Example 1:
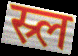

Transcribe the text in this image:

स्र्ल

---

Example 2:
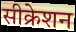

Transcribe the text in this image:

सीक्रेशन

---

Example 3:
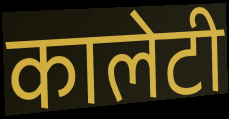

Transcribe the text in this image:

कालेटी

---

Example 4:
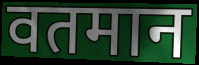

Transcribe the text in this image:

वतमान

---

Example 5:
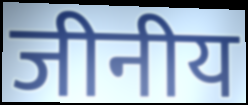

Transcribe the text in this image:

जीनीय